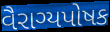
વૈરાગ્યપોષક